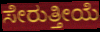
ಸೇರುತ್ತೀಯೆ